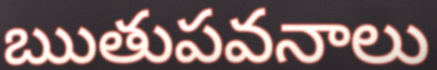
ఋతుపవనాలు